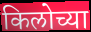
किलोच्या